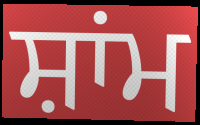
ਸ਼ਾਂਮ